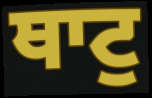
ਥਾਟੁ